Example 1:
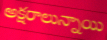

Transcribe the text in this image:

అక్షరాలున్నాయి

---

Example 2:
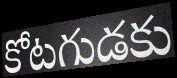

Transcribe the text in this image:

కోటగుడకు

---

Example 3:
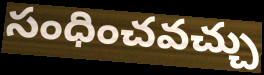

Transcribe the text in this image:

సంధించవచ్చు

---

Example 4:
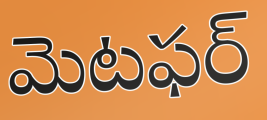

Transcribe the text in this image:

మెటఫర్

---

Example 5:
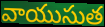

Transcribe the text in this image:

వాయుసుత